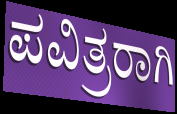
ಪವಿತ್ರರಾಗಿ